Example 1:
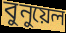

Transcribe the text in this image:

বুনুয়েল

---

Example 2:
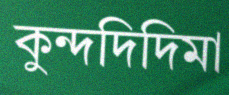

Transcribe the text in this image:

কুন্দদিদিমা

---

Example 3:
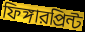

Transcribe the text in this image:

ফিঙ্গারপ্রিন্ট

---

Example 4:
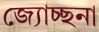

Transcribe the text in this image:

জ্যোচ্ছনা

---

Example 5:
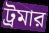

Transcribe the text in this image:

ট্রমার